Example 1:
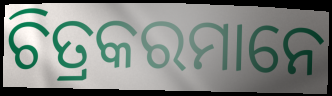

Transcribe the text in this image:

ଚିତ୍ରକରମାନେ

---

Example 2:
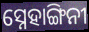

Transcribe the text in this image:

ସ୍ନେହାଙ୍ଗିନୀ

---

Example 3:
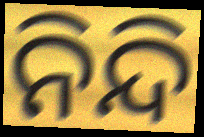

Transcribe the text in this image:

ନିନ୍ଦି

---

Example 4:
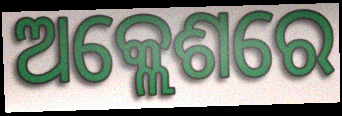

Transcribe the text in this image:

ଅକ୍ଲେଶରେ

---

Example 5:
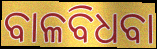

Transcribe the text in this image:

ବାଳବିଧବା